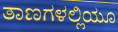
ತಾಣಗಳಲ್ಲಿಯೂ